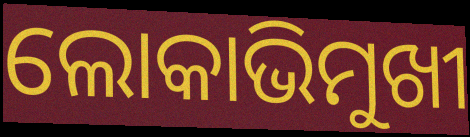
ଲୋକାଭିମୁଖୀ